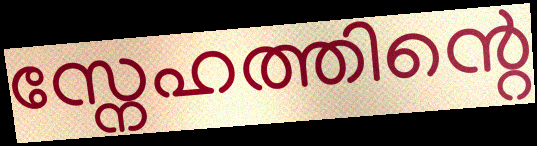
സ്നേഹത്തിന്റെ